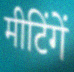
मीटिंगें